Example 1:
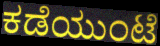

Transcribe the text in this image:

ಕಡೆಯುಂಟೆ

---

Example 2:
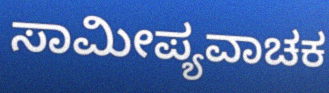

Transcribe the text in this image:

ಸಾಮೀಪ್ಯವಾಚಕ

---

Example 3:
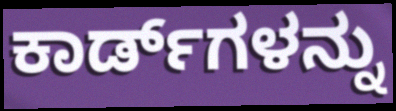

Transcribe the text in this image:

ಕಾರ್ಡ್‌ಗಳನ್ನು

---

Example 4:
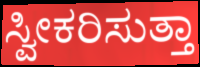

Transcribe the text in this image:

ಸ್ವೀಕರಿಸುತ್ತಾ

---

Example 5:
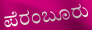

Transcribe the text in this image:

ಪೆರಂಬೂರು